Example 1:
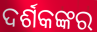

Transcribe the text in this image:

ଦର୍ଶକଙ୍କର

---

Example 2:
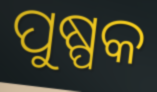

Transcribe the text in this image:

ପୁଷ୍ପକ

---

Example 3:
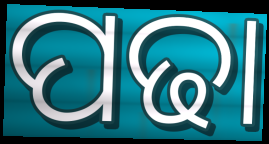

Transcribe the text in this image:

ପଢା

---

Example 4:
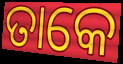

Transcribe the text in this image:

ତାକେ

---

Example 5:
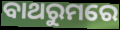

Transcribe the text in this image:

ବାଥରୁମରେ